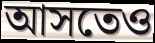
আসতেও